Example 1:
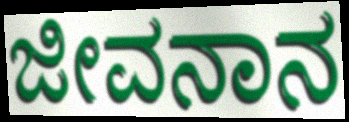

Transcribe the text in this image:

ಜೀವನಾನ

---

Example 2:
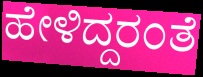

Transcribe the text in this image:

ಹೇಳಿದ್ದರಂತೆ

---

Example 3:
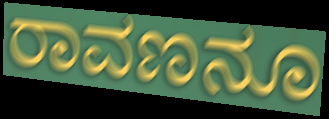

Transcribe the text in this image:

ರಾವಣನೂ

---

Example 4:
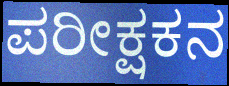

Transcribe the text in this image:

ಪರೀಕ್ಷಕನ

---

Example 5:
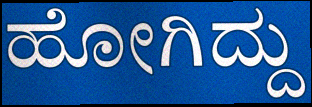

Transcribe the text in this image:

ಹೋಗಿದ್ದು